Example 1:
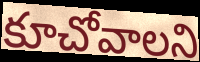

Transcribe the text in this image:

కూచోవాలని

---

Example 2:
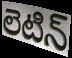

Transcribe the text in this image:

లెటిన్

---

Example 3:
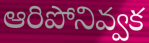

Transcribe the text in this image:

ఆరిపోనివ్వక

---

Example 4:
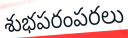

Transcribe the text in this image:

శుభపరంపరలు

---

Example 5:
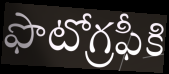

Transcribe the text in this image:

ఫొటోగ్రఫీకి